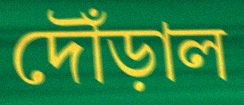
দৌঁড়াল